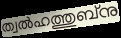
ത്വൽഹത്തുബ്നു